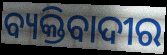
ବ୍ୟକ୍ତିବାଦୀର